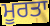
ਮੂਰਤਾ